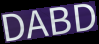
DABD